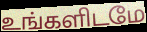
உங்களிடமே